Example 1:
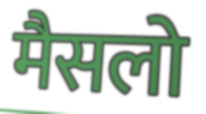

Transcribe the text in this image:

मैसलो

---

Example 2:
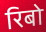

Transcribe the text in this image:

रिबो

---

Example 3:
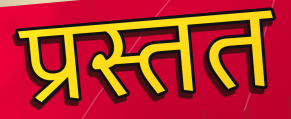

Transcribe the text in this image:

प्रस्तत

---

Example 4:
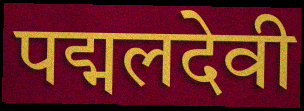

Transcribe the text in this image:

पद्मलदेवी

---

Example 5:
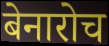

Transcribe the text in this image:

बेनारोच